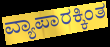
ವ್ಯಾಪಾರಕ್ಕಿಂತ